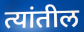
त्यांतील